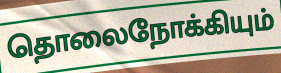
தொலைநோக்கியும்